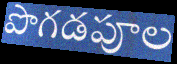
పొగడపూల